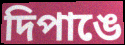
দিপাঙে